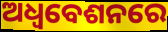
ଅଧ୍ଵବେଶନରେ